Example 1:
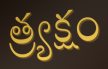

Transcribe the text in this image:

త్ర్యక్షం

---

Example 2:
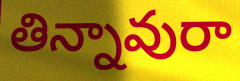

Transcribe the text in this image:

తిన్నావురా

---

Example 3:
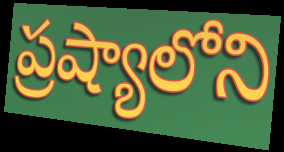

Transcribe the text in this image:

ప్రష్యాలోని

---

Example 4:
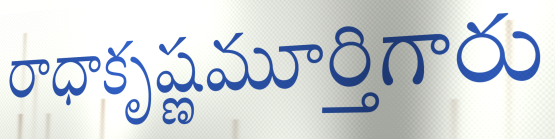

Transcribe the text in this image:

రాధాకృష్ణమూర్తిగారు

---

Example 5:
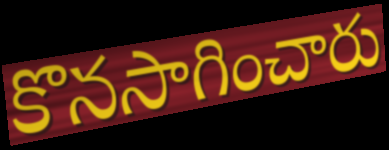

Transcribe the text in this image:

కొనసాగించారు